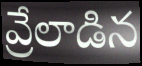
వ్రేలాడిన